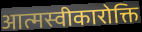
आत्मस्वीकारोक्ति